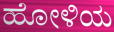
ಹೋಳಿಯ